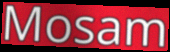
Mosam